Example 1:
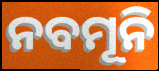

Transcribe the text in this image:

ନବମୂନି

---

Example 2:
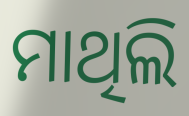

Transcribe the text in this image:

ମାଥିଲି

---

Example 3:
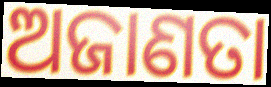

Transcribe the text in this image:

ଅଜାଣତା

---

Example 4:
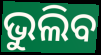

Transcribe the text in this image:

ଭୁଲିବ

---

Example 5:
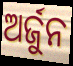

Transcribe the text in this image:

ଅର୍ଜୁନ